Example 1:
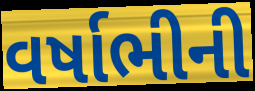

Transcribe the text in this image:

વર્ષાભીની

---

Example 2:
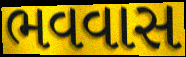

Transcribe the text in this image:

ભવવાસ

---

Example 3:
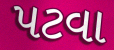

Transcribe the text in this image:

પટવા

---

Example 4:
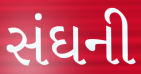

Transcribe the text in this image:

સંઘની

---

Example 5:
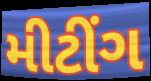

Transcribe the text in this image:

મીટીંગ